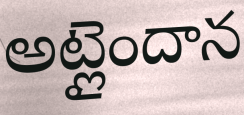
అట్లైందాన